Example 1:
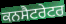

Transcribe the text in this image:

ਕਨਸੈਟਰੇਟਰ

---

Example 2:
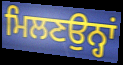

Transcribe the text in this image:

ਮਿਲਣਉਨ੍ਹਾਂ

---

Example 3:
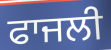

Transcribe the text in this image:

ਫਾਜਲੀ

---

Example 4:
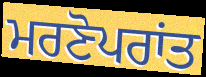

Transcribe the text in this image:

ਮਰਣੋਪਰਾਂਤ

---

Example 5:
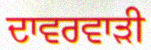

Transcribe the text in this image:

ਦਾਵਰਵਾੜੀ